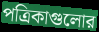
পত্রিকাগুলোর